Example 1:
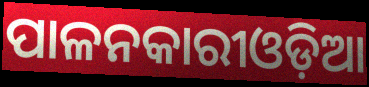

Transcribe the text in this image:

ପାଳନକାରୀଓଡ଼ିଆ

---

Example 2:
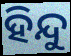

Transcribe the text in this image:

ହିନ୍ଦୁ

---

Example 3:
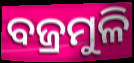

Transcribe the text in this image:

ବଜ୍ରମୁଳି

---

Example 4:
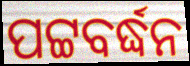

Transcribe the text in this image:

ପଟ୍ଟବର୍ଦ୍ଧନ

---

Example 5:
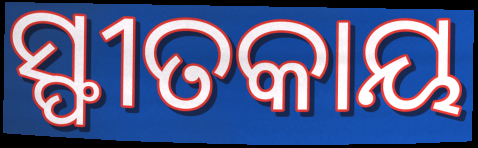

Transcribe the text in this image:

ସ୍ଫୀତକାୟ